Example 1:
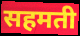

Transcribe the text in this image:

सहमती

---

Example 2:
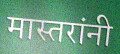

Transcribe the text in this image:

मास्तरांनी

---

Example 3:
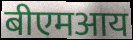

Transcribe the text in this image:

बीएमआय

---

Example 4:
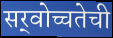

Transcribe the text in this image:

सर्वोच्चतेची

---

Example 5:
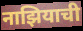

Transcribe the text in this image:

नाझियाची